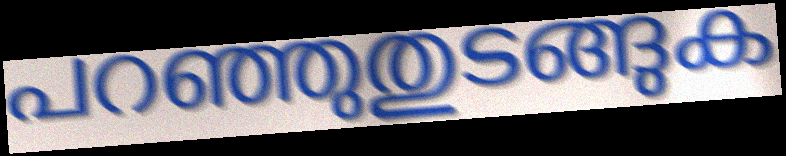
പറഞ്ഞുതുടങ്ങുക